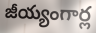
జీయ్యంగార్ల